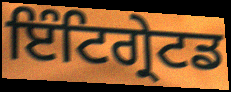
ਇੰਟਿਗ੍ਰੇਟਡ